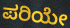
ಪರಿಯೇ